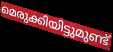
മെരുക്കിയിട്ടുമുണ്ട്